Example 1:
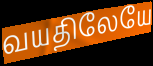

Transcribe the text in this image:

வயதிலேயே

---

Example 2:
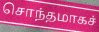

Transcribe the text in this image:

சொந்தமாகச்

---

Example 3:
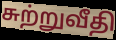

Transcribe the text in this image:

சுற்றுவீதி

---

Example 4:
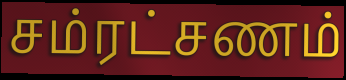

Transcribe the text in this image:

சம்ரட்சணம்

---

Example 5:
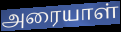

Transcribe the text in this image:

அரையாள்